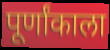
पूर्णांकाला